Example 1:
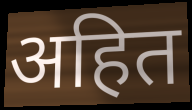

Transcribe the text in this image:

अहित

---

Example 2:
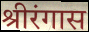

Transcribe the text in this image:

श्रीरंगास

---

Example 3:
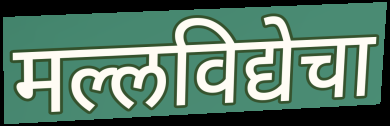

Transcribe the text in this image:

मल्लविद्येचा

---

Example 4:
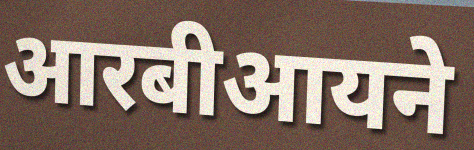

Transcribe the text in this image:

आरबीआयने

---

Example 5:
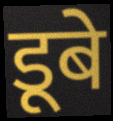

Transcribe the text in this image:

डूबे